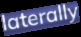
laterally